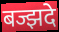
बज्झदे